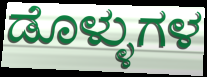
ಡೊಳ್ಳುಗಳ